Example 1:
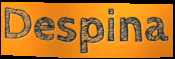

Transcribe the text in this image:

Despina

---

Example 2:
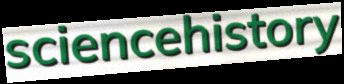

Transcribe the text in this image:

sciencehistory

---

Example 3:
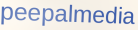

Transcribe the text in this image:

peepalmedia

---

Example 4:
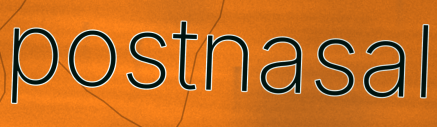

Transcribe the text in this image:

postnasal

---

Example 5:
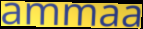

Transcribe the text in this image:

ammaa